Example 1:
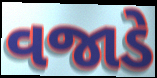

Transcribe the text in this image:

વજાડે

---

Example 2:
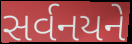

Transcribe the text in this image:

સર્વનયને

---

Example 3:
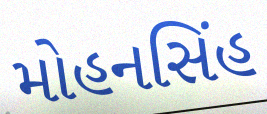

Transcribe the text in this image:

મોહનસિંહ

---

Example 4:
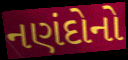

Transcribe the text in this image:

નણંદોનો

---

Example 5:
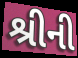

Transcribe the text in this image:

શ્રીની